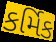
કર્મિક